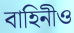
বাহিনীও